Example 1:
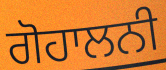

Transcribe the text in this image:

ਗੋਹਾਲਨੀ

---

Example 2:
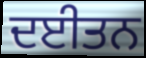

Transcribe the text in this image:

ਦਈਤਨ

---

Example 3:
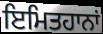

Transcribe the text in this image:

ਇਮਿਤਹਾਨਾਂ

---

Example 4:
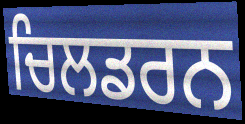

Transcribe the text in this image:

ਚਿਲਡਰਨ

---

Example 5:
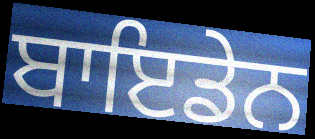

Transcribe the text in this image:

ਬਾਇਡੇਨ